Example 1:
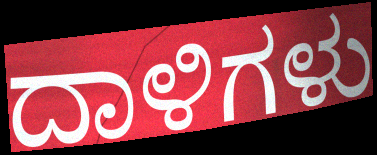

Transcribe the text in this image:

ದಾಳಿಗಳು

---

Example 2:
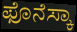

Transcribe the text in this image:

ಫೊನೆಸ್ಕಾ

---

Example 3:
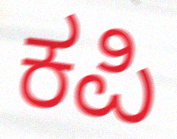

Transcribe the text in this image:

ಕಪಿ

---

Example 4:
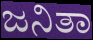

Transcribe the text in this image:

ಜನಿತಾ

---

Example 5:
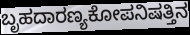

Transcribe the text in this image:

ಬೃಹದಾರಣ್ಯಕೋಪನಿಷತ್ತಿನ